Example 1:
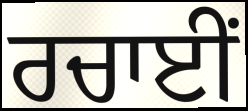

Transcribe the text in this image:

ਰਚਾਈਂ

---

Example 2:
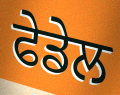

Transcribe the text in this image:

ਫੇਡੇਲ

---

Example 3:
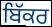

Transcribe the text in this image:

ਬਿੱਕਰ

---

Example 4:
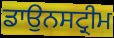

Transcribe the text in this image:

ਡਾਉਨਸਟ੍ਰੀਮ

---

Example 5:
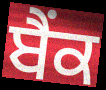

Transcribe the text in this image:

ਬੈਂਕ